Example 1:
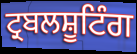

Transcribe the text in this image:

ਟ੍ਰਬਲਸ਼ੂਟਿੰਗ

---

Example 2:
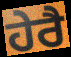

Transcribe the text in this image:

ਹੇਰੈ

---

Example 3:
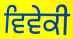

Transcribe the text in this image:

ਵਿਵੇਕੀ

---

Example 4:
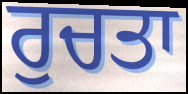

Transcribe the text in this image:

ਰੁਚਤਾ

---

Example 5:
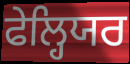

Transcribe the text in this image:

ਫੇਲ੍ਹਿਯਰ